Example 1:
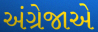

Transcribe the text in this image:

અંગ્રેજાએ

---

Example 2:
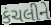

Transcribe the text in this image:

કંચલીને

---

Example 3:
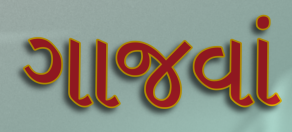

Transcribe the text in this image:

ગાજવાં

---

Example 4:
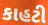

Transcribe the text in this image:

કાહટી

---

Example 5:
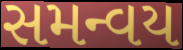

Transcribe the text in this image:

સમન્વય